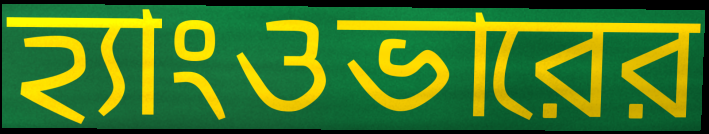
হ্যাংওভারের